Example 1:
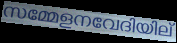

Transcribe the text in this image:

സമ്മേളനവേദിയില്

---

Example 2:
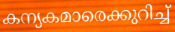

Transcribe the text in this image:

കന്യകമാരെക്കുറിച്ച്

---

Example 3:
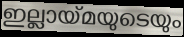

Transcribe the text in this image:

ഇല്ലായ്മയുടെയും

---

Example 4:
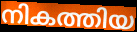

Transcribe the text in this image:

നികത്തിയ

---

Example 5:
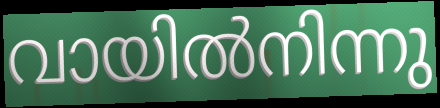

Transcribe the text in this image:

വായിൽനിന്നു